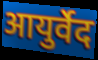
आयुर्वेद